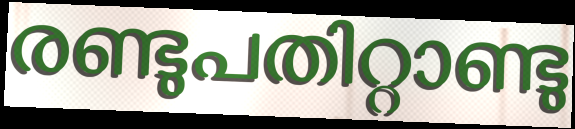
രണ്ടുപതിറ്റാണ്ടു